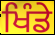
ਖਿੰਡੇ